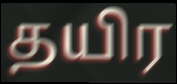
தயிர